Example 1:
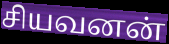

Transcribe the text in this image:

சியவனன்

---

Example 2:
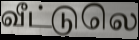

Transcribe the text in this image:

வீட்டுலெ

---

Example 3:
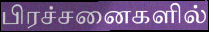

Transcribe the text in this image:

பிரச்சனைகளில்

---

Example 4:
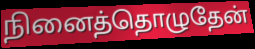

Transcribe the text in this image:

நினைத்தொழுதேன்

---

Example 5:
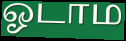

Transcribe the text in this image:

ஓடாம